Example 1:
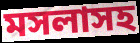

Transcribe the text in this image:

মসলাসহ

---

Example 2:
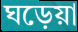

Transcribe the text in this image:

ঘড়েয়া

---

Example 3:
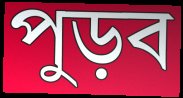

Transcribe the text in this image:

পুড়ব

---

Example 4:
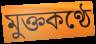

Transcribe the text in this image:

মুক্তকণ্ঠে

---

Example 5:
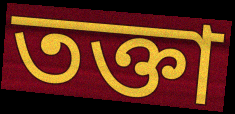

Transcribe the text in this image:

তক্তা